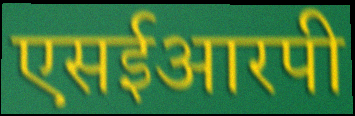
एसईआरपी